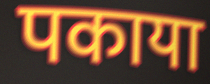
पकाया